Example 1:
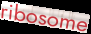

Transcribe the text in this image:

ribosome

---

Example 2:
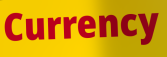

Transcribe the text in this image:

Currency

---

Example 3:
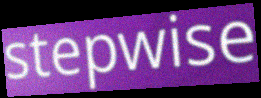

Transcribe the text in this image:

stepwise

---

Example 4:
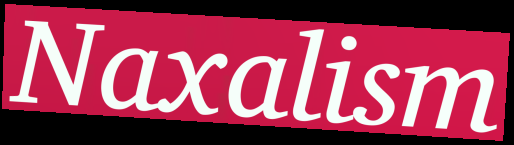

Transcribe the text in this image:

Naxalism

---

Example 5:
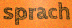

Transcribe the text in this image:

sprach